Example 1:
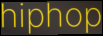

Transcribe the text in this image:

hiphop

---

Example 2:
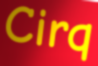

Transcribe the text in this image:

Cirq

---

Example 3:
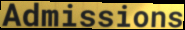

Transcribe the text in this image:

Admissions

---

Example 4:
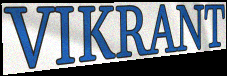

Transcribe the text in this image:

VIKRANT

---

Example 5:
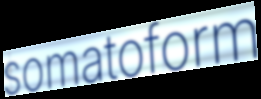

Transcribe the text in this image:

somatoform